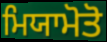
ਮਿਯਾਮੋਤੋ